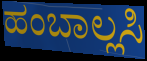
ಹಂಬಾಲ್ಲಸಿ